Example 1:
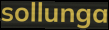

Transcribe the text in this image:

sollunga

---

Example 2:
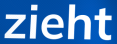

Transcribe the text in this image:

zieht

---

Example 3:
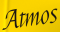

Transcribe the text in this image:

Atmos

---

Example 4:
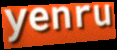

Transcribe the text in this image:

yenru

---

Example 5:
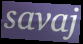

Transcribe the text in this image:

savaj